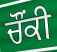
ਚੌਂਕੀ